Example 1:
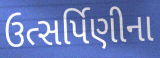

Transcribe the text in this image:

ઉત્સર્પિણીના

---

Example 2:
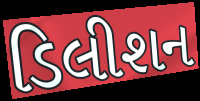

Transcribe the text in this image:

ડિલીશન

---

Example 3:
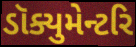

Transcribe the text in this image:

ડૉક્યુમેન્ટરિ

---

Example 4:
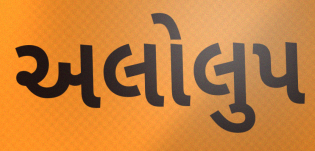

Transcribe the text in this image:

અલોલુપ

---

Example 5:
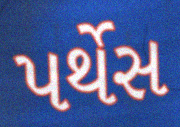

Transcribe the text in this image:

પર્થેસ